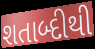
શતાબ્દીથી